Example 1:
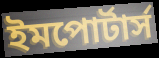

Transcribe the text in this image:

ইমপোর্টার্স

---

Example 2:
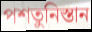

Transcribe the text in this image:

পশতুনিস্তান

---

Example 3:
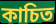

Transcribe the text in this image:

কাচিত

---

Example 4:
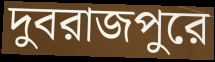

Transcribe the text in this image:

দুবরাজপুরে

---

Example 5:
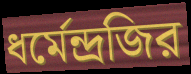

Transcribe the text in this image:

ধর্মেন্দ্রজির